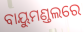
ବାୟୁମଣ୍ଡଲରେ